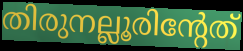
തിരുനല്ലൂരിന്റേത്